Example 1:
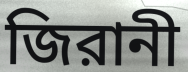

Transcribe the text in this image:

জিরানী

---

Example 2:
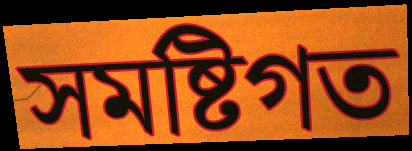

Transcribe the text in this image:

সমষ্টিগত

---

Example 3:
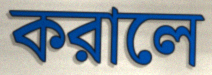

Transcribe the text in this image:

করালে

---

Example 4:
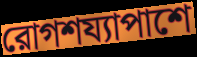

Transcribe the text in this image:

রোগশয্যাপাশে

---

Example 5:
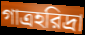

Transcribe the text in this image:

গাত্রহরিদ্রা